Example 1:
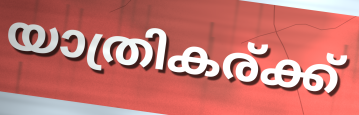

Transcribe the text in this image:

യാത്രികര്ക്ക്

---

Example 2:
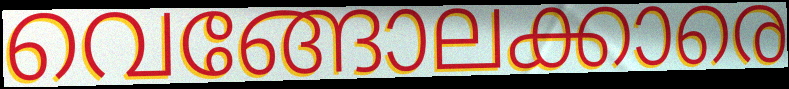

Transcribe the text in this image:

വെങ്ങോലക്കാരെ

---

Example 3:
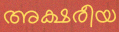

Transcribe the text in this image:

അക്ഷരീയ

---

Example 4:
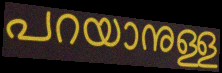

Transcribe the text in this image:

പറയാനുള്ള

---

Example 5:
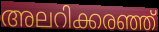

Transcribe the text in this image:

അലറിക്കരഞ്ഞ്